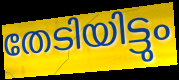
തേടിയിട്ടും